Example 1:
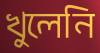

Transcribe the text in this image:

খুলেনি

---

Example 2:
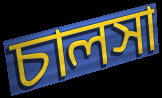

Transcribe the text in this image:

চালসা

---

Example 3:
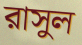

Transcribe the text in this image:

রাসুল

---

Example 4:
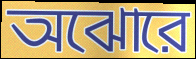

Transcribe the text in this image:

অঝোরে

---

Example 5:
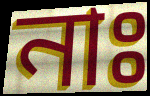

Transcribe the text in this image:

নাঃ